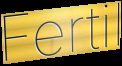
Fertil